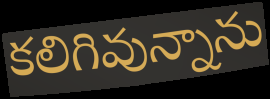
కలిగివున్నాను